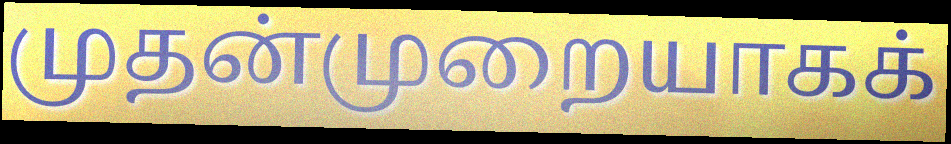
முதன்முறையாகக்